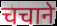
चचाने